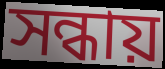
সন্ধায়